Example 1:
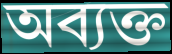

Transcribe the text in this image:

অব্যক্ত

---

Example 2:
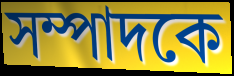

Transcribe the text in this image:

সম্পাদকে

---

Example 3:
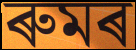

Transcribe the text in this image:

ৰুমৰ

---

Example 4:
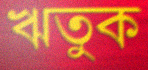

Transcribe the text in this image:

ঋতুক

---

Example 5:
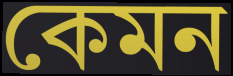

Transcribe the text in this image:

কেমন